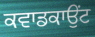
ਕਵਾਡਕਾਉਂਟ